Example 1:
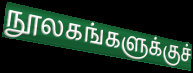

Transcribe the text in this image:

நூலகங்களுக்குச்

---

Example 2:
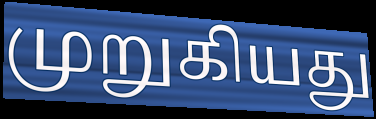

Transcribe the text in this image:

முறுகியது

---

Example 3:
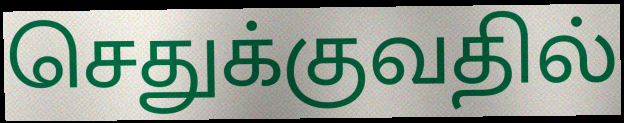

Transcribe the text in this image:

செதுக்குவதில்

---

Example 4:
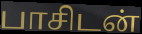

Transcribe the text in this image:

பாசிடன்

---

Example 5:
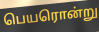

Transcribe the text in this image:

பெயரொன்று